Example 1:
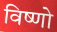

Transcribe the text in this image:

विष्णो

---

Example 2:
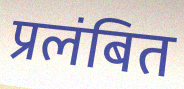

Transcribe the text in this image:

प्रलंबित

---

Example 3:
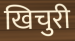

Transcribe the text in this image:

खिचुरी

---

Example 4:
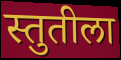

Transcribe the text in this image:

स्तुतीला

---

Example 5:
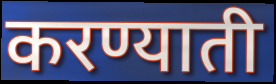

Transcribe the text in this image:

करण्याती